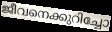
ജീവനെക്കുറിച്ചോ